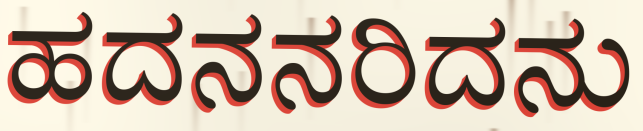
ಹದನನರಿದನು